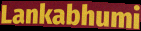
Lankabhumi